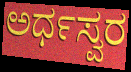
ಅರ್ಧಸ್ವರ